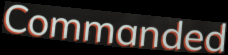
Commanded